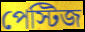
পেস্টিজ